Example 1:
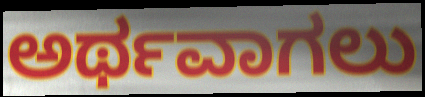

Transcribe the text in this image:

ಅರ್ಥವಾಗಲು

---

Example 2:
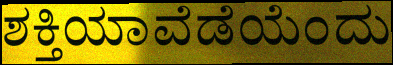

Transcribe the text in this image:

ಶಕ್ತಿಯಾವೆಡೆಯೆಂದು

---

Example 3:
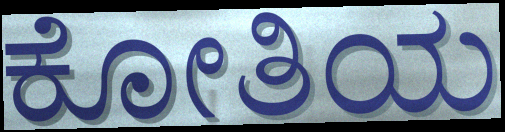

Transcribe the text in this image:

ಕೋತಿಯ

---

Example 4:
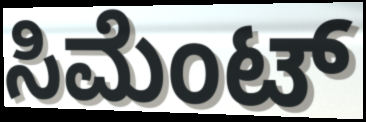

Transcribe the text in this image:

ಸಿಮೆಂಟ್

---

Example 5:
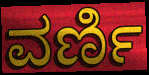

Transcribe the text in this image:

ವರ್ಣಿ